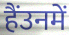
हैंउनमें